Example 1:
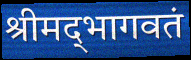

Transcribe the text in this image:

श्रीमद्‌भागवतं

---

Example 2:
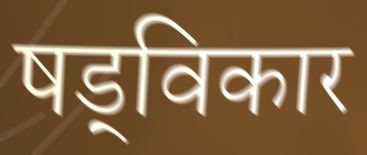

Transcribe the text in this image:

षड्‌विकार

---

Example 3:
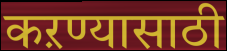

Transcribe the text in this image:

कऱण्यासाठी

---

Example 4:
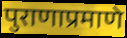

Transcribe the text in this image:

पुराणाप्रमाणे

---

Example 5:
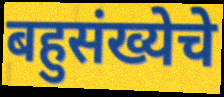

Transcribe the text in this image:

बहुसंख्येचे